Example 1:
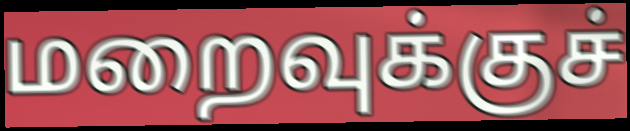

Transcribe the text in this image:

மறைவுக்குச்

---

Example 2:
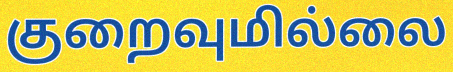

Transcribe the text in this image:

குறைவுமில்லை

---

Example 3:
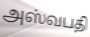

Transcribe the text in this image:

அஸ்வபதி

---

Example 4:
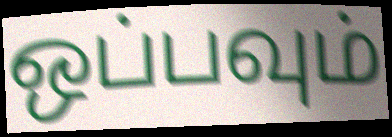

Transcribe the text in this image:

ஒப்பவும்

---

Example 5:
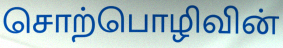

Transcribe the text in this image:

சொற்பொழிவின்